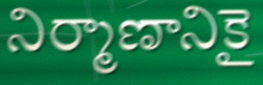
నిర్మాణానికై